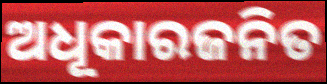
ଅଧୂକାରଜନିତ